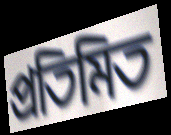
প্রতিমিত